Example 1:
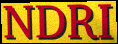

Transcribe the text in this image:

NDRI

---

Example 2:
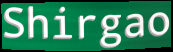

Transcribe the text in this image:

Shirgao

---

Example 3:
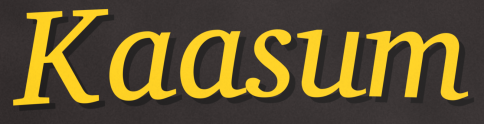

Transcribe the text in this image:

Kaasum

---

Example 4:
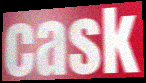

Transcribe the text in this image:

cask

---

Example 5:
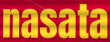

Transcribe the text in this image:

nasata